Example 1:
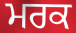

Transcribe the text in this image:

ਮਰਕ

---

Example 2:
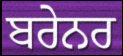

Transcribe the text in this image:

ਬਰੇਨਰ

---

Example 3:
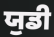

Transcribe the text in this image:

ਯੁਡੀ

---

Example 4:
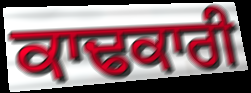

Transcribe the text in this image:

ਕਾਢਕਾਰੀ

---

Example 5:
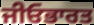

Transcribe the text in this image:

ਜੀਓਭਾਰਤ